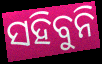
ସହିବୁନି